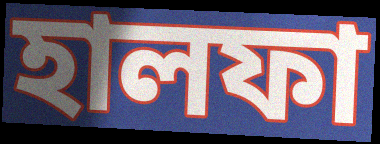
হালফা